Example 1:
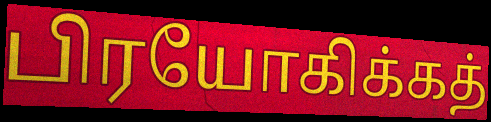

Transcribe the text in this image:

பிரயோகிக்கத்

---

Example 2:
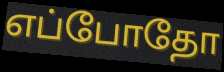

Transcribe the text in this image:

எப்போதோ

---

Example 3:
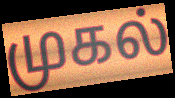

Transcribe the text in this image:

முகல்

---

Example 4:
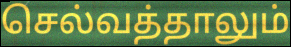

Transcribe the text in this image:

செல்வத்தாலும்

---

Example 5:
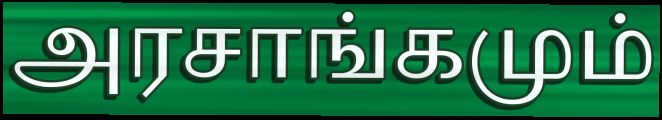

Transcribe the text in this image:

அரசாங்கமும்